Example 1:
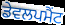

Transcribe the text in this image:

ਡੇਵਲਪਮੈਂਟ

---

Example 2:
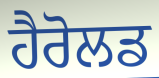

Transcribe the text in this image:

ਹੈਰੋਲਡ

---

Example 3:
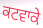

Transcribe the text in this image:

ਕਟਵਾਕੇ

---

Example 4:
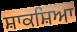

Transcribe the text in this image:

ਸ਼ਾਕਸ਼ਿਆ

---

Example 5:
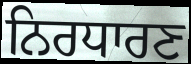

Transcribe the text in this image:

ਨਿਰਧਾਰਣ